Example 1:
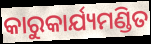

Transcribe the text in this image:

କାରୁକାର୍ଯ୍ୟମଣ୍ଡିତ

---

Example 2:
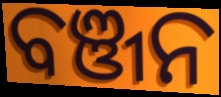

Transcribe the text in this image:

ବଞ୍ଜନ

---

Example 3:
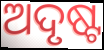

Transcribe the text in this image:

ଅଦୃଷ୍ଟ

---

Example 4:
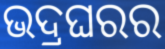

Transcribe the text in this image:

ଭଦ୍ରଘରର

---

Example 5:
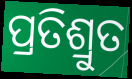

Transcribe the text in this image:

ପ୍ରତିଶ୍ରୁତ